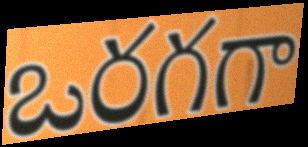
ఒరగగా